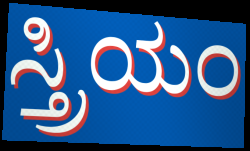
ಸ್ತ್ರಿಯಂ